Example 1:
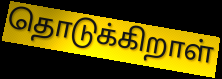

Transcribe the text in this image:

தொடுக்கிறாள்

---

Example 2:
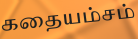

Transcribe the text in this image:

கதையம்சம்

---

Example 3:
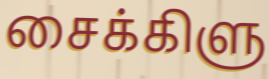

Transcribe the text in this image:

சைக்கிளு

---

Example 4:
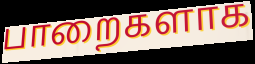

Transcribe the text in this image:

பாறைகளாக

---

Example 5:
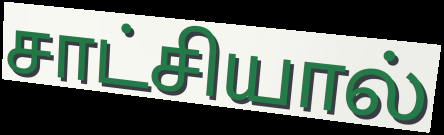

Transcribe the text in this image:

சாட்சியால்